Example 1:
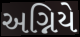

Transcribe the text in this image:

અગ્નિયે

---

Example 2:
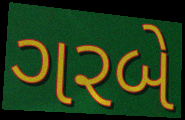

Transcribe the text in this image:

ગરબે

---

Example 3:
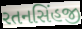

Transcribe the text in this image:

રતનસિંહજી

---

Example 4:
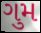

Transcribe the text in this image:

ગુમ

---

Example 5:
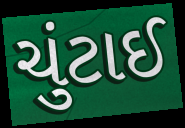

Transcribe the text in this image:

ચુંટાઈ